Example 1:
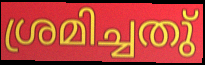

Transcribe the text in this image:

ശ്രമിച്ചതു്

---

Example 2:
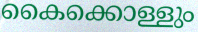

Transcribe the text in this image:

കൈക്കൊള്ളും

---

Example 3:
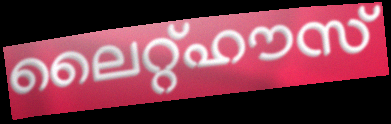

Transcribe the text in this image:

ലൈറ്റ്ഹൗസ്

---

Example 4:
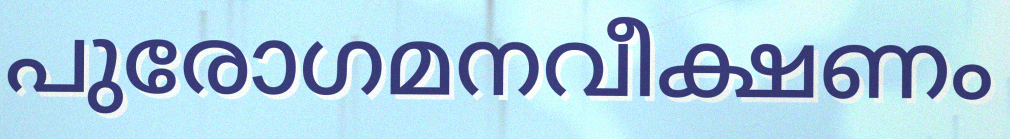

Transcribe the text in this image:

പുരോഗമനവീക്ഷണം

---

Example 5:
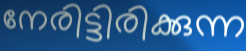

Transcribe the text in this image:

നേരിട്ടിരിക്കുന്ന